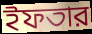
ইফতার